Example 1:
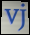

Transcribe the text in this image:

vj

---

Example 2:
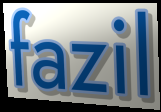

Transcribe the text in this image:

fazil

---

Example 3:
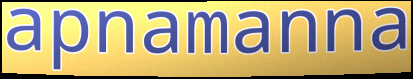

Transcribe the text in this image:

apnamanna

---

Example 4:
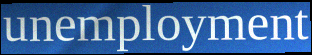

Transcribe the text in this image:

unemployment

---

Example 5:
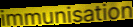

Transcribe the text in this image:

immunisation